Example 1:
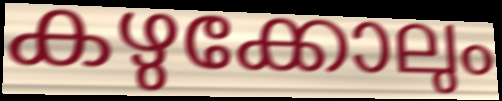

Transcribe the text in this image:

കഴുക്കോലും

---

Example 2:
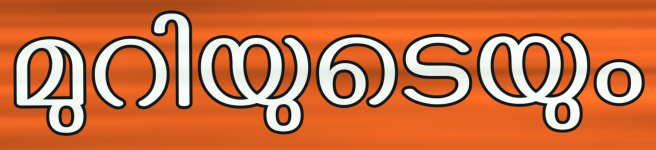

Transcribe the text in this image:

മുറിയുടെയും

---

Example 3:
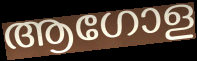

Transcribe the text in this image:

ആഗോള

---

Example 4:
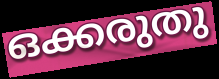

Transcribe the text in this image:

ഒക്കരുതു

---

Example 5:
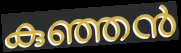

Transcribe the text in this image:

കുഞ്ഞൻ